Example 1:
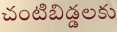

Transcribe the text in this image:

చంటిబిడ్డలకు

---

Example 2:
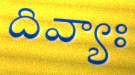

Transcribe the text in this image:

దివ్యాః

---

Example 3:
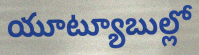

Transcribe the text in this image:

యూట్యూబుల్లో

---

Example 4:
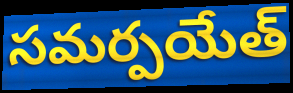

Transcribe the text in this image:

సమర్పయేత్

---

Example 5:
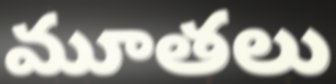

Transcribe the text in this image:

మూతలు